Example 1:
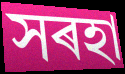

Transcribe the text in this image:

সৰহা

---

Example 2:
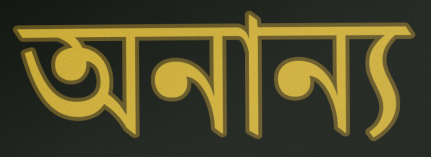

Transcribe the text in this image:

অনান্য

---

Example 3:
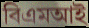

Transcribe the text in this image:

বিএমআই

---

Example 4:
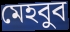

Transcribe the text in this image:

মেহবুব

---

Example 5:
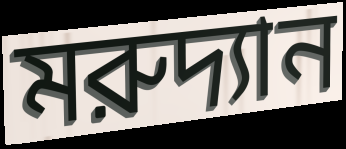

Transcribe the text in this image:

মৰুদ্যান